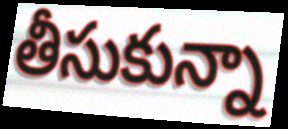
తీసుకున్నా